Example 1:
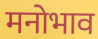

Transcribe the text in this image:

मनोभाव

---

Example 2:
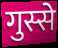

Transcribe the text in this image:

गुस्‍से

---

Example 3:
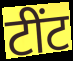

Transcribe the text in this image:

टींट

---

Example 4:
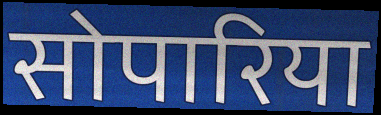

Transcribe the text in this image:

सोपारिया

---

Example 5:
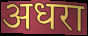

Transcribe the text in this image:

अधरा